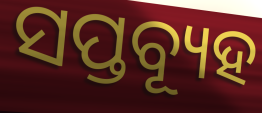
ସପ୍ତବ୍ୟୂହ